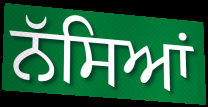
ਨੱਸਿਆਂ